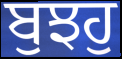
ਬੁਝਹੁ